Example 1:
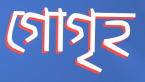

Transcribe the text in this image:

গোগৃহ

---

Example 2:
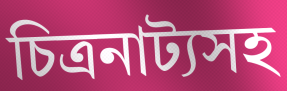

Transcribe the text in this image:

চিত্রনাট্যসহ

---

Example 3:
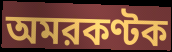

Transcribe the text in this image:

অমরকণ্টক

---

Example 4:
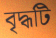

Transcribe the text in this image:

বৃদ্ধটি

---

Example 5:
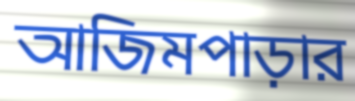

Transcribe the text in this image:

আজিমপাড়ার